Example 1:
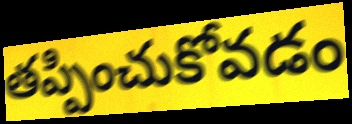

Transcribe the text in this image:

తప్పించుకోవడం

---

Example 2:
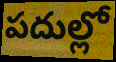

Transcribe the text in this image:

పదుల్లో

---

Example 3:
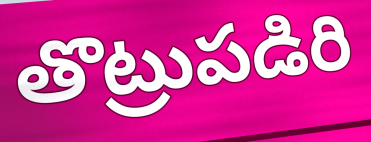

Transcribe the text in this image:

తొట్రుపడిరి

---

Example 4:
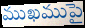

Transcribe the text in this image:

ముఖముపై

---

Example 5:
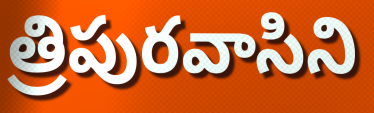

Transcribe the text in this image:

త్రిపురవాసిని